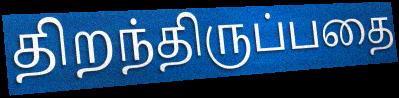
திறந்திருப்பதை